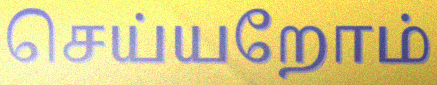
செய்யறோம்